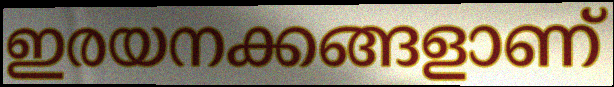
ഇരയനക്കങ്ങളാണ്